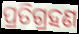
ପ୍ରତିଗ୍ରହଣ